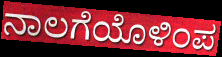
ನಾಲಗೆಯೊಳಿಂಪ